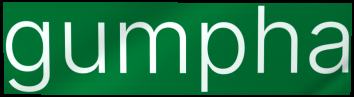
gumpha